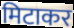
मिटाकर